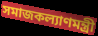
সমাজকল্যাণমন্ত্রী